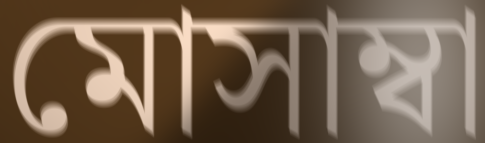
মোসাম্বা